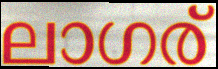
ലാഗര്